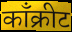
काँक्रीट